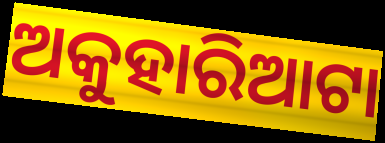
ଅକୁହାରିଆଟା